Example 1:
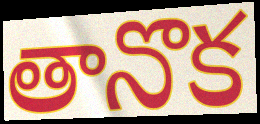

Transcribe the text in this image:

తానొక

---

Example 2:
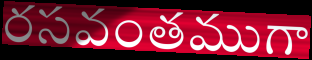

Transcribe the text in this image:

రసవంతముగా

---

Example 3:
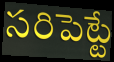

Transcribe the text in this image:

సరిపెట్టే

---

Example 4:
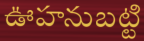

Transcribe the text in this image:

ఊహనుబట్టి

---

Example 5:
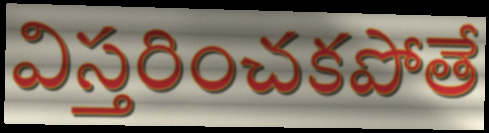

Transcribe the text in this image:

విస్తరించకపోతే